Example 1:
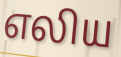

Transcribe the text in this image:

எலிய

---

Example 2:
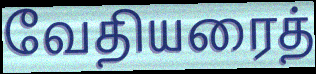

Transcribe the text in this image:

வேதியரைத்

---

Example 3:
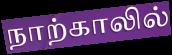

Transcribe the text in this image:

நாற்காலில்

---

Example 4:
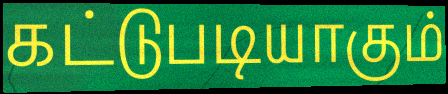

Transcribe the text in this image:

கட்டுபடியாகும்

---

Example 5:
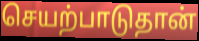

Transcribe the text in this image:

செயற்பாடுதான்